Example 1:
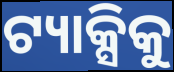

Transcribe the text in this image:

ଟ୍ୟାକ୍ସିକୁ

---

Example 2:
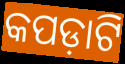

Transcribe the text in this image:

କପଡ଼ାଟି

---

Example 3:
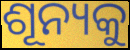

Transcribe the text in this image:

ଶୂନ୍ୟକୁ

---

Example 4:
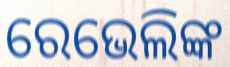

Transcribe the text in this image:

ରେଭେଲିଙ୍କ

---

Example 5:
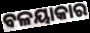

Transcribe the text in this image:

ବଳୟାକାର